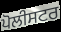
ਪੋਲੀਸਟਰ